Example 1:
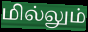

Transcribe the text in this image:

மில்லும்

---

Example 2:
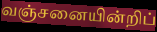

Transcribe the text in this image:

வஞ்சனையின்றிப்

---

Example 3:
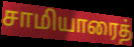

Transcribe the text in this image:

சாமியாரைத்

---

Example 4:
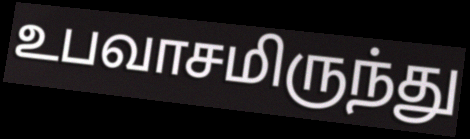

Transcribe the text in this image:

உபவாசமிருந்து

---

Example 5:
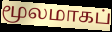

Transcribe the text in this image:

மூலமாகப்